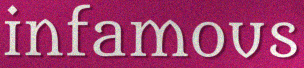
infamous